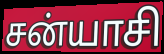
சன்யாசி